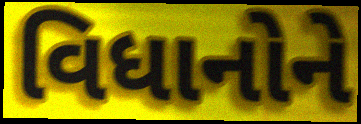
વિધાનોને